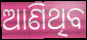
ଆଣିଥିବ